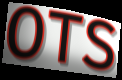
OTS